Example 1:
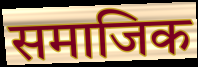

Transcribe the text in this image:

समाजिक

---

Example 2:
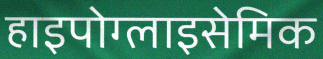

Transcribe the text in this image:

हाइपोग्लाइसेमिक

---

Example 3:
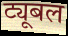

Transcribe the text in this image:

ट्यूबल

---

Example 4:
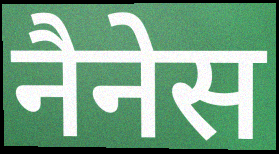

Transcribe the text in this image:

नैनेस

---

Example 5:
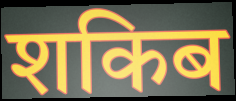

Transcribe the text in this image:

शकिब